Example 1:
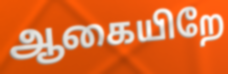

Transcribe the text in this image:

ஆகையிறே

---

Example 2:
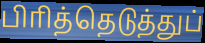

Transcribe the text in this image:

பிரித்தெடுத்துப்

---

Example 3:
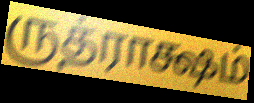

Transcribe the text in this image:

ருத்ராக்ஷம்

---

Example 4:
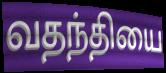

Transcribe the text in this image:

வதந்தியை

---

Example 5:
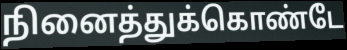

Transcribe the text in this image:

நினைத்துக்கொண்டே